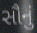
સૌનું